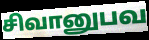
சிவானுபவ